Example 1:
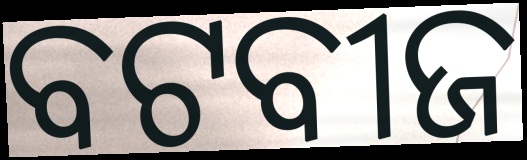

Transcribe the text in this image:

ବଟବୀଜ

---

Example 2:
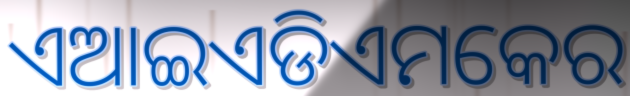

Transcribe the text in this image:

ଏଆଇଏଡିଏମକେର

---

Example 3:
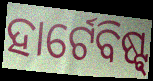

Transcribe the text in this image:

ହାର୍ଟେବିଷ୍ଟ୍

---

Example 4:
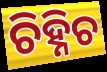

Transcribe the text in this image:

ଚିହ୍ନିଚ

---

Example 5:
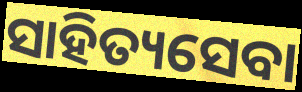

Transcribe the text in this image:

ସାହିତ୍ୟସେବା